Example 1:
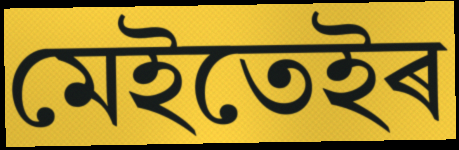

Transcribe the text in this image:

মেইতেইৰ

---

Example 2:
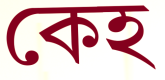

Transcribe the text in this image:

কেহ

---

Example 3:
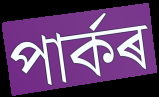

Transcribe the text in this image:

পাৰ্কৰ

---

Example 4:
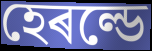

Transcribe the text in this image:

হেৰল্ডে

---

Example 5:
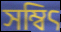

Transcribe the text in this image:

সম্বিৎ